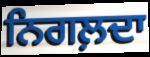
ਨਿਗਲ਼ਦਾ